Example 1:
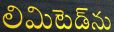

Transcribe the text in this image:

లిమిటెడ్‌ను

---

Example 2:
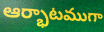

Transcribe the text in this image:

ఆర్భాటముగా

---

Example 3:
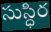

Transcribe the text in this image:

సుస్ధిర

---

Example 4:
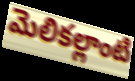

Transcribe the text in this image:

మెలికల్లాంటి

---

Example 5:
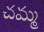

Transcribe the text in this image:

చమ్మ